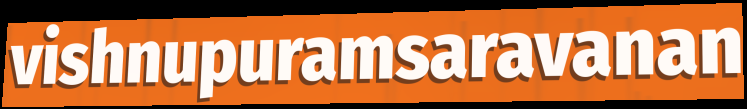
vishnupuramsaravanan